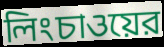
লিংচাওয়ের